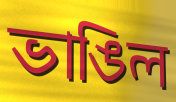
ভাঙিল